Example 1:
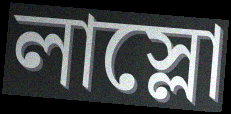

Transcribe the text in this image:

লাস্লো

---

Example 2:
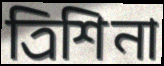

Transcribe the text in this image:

ত্রিশিনা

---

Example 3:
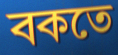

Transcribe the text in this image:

বকতে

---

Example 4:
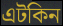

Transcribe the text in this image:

এটকিন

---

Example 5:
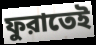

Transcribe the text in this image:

ফুরাতেই